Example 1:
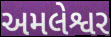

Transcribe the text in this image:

અમલેશ્વર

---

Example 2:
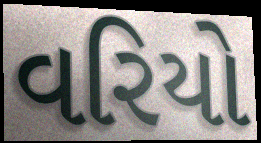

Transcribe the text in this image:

વરિયો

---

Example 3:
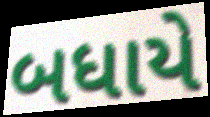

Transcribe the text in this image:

બધાયે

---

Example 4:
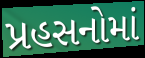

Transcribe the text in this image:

પ્રહસનોમાં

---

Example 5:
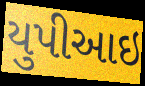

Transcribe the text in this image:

યુપીઆઇ